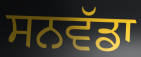
ਸਨਵੱਡਾ